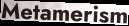
Metamerism